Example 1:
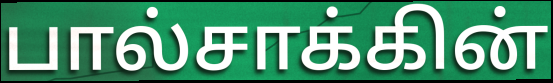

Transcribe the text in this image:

பால்சாக்கின்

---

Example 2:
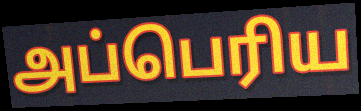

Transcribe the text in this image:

அப்பெரிய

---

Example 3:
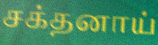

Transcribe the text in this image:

சக்தனாய்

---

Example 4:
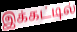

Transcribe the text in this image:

இக்கட்டில்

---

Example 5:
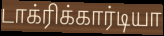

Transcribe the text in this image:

டாக்ரிக்கார்டியா